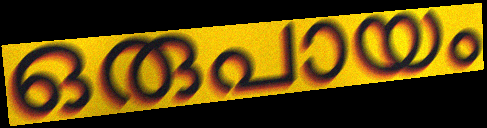
ഒരുപായം